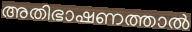
അതിഭാഷണത്താൽ